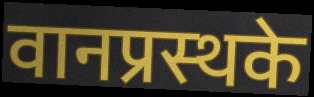
वानप्रस्थके